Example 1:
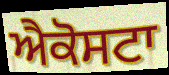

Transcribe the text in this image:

ਐਕੋਸਟਾ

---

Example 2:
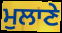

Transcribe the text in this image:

ਮੁਲਾਣੇ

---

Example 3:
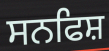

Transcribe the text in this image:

ਸਨਫਿਸ਼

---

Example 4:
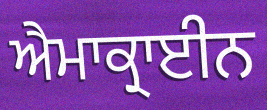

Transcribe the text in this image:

ਐਮਾਕ੍ਰਾਈਨ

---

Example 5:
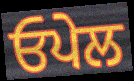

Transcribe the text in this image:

ਓਪੇਲ